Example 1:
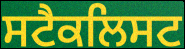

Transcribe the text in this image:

ਸਟੈਕਲਿਸਟ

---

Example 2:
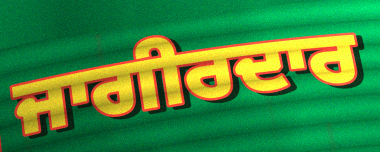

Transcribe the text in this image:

ਜਾਗੀਰਦਾਰ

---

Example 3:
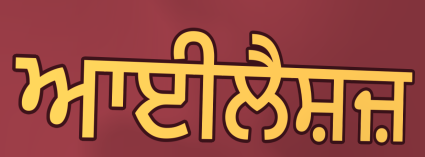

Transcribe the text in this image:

ਆਈਲੈਸ਼ਜ਼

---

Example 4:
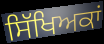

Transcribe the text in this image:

ਸਿੱਖਿਅਕਾਂ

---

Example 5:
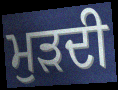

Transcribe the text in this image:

ਮੁੜਦੀ